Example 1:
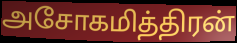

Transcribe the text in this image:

அசோகமித்திரன்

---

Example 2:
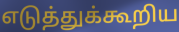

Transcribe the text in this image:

எடுத்துக்கூறிய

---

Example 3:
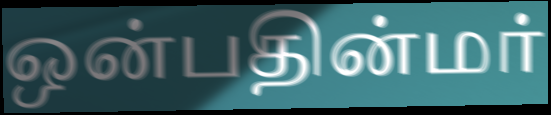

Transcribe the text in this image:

ஒன்பதின்மர்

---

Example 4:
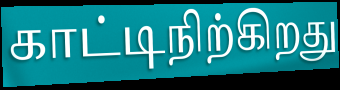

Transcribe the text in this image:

காட்டிநிற்கிறது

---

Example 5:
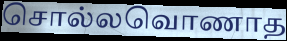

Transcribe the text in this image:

சொல்லவொணாத